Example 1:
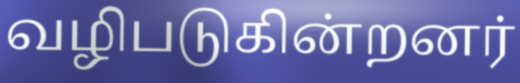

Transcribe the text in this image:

வழிபடுகின்றனர்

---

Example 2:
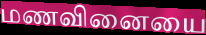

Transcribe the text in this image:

மணவினையை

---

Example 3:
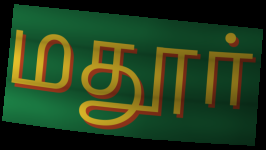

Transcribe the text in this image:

மதூர்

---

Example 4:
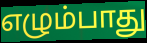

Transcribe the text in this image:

எழும்பாது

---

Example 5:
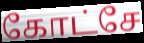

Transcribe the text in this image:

கோட்சே